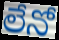
లేనో